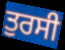
ਤੁਰਸੀ